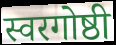
स्वरगोष्ठी